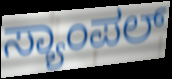
ಸ್ಯಾಂಪಲ್